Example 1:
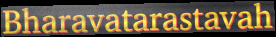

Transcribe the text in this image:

Bharavatarastavah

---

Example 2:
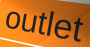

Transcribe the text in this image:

outlet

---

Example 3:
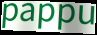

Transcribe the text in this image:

pappu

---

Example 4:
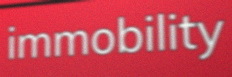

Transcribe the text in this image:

immobility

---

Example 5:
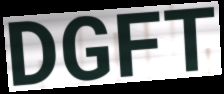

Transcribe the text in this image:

DGFT